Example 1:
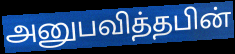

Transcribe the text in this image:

அனுபவித்தபின்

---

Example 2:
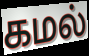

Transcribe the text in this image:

கமல்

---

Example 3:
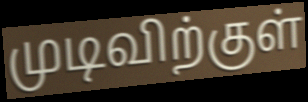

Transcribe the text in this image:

முடிவிற்குள்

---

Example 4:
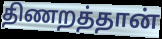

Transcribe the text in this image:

திணறத்தான்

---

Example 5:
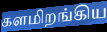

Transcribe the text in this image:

களமிறங்கிய